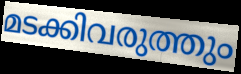
മടക്കിവരുത്തും